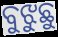
ବୁଝୁଛୁ